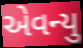
એવન્યુ